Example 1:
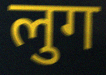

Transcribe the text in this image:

लुग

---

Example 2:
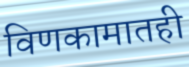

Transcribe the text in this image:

विणकामातही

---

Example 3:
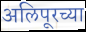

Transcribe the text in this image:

अलिपूरच्या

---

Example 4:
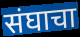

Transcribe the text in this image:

संघाचा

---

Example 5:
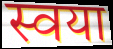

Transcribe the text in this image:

स्वया